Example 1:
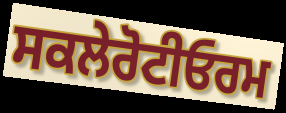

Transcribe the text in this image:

ਸਕਲੇਰੋਟੀਓਰਮ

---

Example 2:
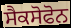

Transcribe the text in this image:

ਸੈਕਸੋਫੋਨ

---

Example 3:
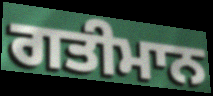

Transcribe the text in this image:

ਗਤੀਮਾਨ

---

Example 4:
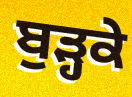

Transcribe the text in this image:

ਬੁੜ੍ਹਕੇ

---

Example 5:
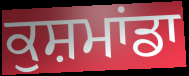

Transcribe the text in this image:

ਕੁਸ਼ਮਾਂਡਾ